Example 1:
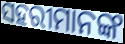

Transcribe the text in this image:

ସହରୀମାନଙ୍କ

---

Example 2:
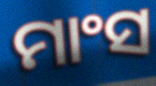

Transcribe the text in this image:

ମାଂସ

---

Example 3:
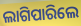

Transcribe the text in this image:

ଲାଗିପାରିଲେ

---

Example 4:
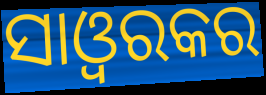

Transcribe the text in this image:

ସାଓ୍ୱରକର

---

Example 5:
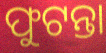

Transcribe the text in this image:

ଫୁଟନ୍ତା